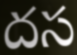
దస